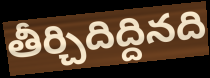
తీర్చిదిద్దినది